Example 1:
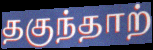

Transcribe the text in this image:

தகுந்தாற்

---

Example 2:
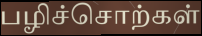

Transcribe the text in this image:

பழிச்சொற்கள்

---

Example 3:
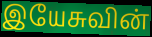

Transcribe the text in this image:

இயேசுவின்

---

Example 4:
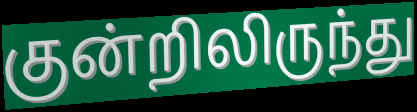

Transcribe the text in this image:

குன்றிலிருந்து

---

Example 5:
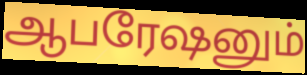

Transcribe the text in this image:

ஆபரேஷனும்